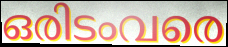
ഒരിടംവരെ